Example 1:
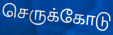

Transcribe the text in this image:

செருக்கோடு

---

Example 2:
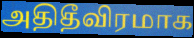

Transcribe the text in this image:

அதிதீவிரமாக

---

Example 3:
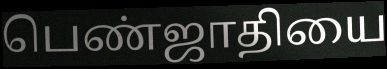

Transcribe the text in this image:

பெண்ஜாதியை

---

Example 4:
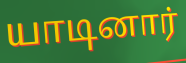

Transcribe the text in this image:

யாடினார்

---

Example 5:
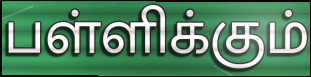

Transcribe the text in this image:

பள்ளிக்கும்